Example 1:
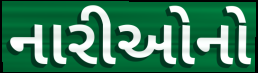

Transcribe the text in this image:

નારીઓનો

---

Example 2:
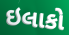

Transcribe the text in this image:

ઇલાકો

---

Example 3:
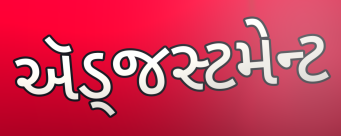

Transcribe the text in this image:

ઍડ્જસ્ટમેન્ટ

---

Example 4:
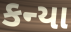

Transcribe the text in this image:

કન્યા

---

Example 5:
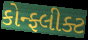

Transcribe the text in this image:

કોન્ફ્લીક્ટ